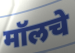
मॉलचे